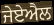
ਜੇਏਐਲ